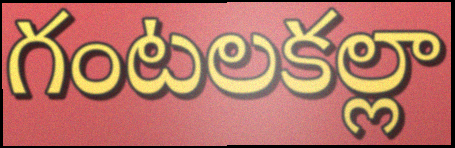
గంటలకల్లా